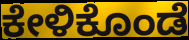
ಕೇಳಿಕೊಂಡೆ